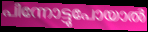
പിന്നോട്ടുപോയാൽ